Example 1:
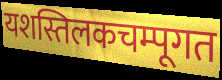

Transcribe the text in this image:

यशस्तिलकचम्पूगत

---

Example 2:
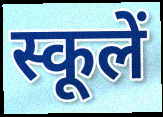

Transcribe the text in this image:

स्कूलें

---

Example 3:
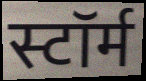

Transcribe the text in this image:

स्टॉर्म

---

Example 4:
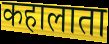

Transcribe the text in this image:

कहालाता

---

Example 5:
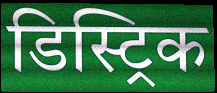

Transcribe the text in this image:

डिस्ट्रिक